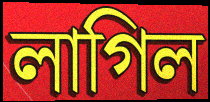
লাগিল